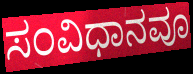
ಸಂವಿಧಾನವೂ